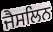
ਜੈਸਲਿਨ